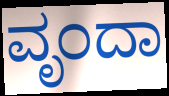
ವೃಂದಾ